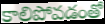
కాలిపోవడంతో